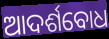
ଆଦର୍ଶବୋଧ